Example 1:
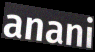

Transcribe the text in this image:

anani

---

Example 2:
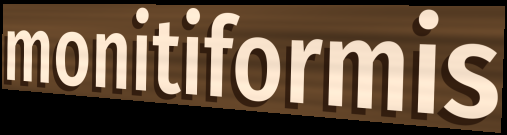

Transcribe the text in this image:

monitiformis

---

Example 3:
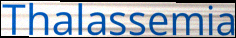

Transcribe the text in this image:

Thalassemia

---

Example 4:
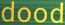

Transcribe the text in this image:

dood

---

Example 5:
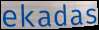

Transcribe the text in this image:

ekadas